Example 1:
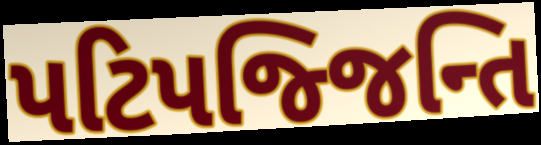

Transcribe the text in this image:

પટિપજ્જિન્તિ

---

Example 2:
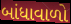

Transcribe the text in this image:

બાંધાવાળો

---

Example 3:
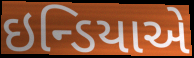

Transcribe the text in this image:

ઇન્ડિયાએ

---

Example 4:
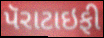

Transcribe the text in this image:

પૅરાટાઇફી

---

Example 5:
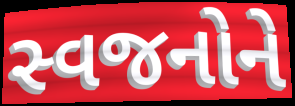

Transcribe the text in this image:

સ્વજનોને